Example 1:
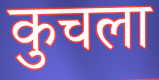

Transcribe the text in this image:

कुचला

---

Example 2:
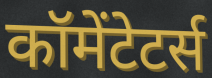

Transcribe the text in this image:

कॉमेंटेटर्स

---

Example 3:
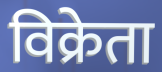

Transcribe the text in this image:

विक्रेता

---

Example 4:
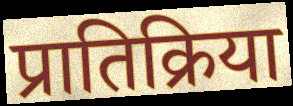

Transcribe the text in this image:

प्रातिक्रिया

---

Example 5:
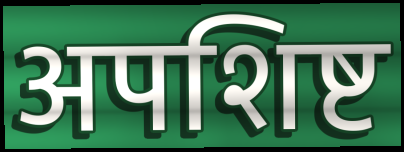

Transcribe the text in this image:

अपशिष्ट